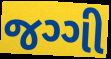
જગ્ગી